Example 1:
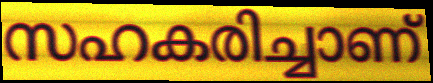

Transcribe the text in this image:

സഹകരിച്ചാണ്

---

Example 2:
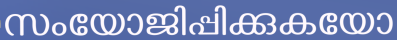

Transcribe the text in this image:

സംയോജിപ്പിക്കുകയോ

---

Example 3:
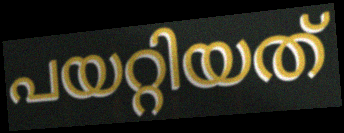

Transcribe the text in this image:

പയറ്റിയത്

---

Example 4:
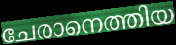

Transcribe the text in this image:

ചേരാനെത്തിയ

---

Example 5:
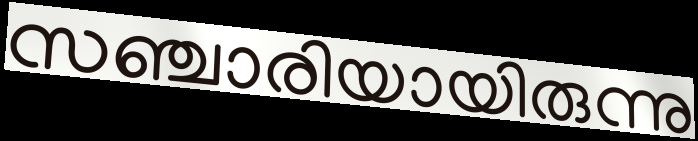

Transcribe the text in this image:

സഞ്ചാരിയായിരുന്നു